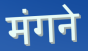
मंगने